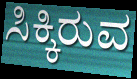
ಸಿಕ್ಕಿರುವ